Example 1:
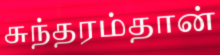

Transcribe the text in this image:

சுந்தரம்தான்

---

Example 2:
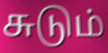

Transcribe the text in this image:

சுடும்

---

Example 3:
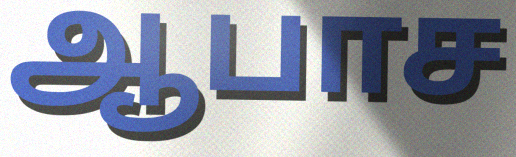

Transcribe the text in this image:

ஆபாச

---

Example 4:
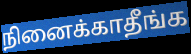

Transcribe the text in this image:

நினைக்காதீங்க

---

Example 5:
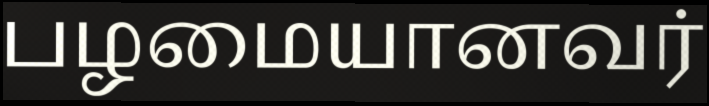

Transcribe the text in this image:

பழமையானவர்